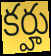
కర్హు